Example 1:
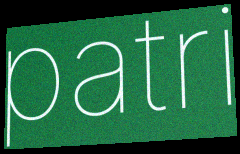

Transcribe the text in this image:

patri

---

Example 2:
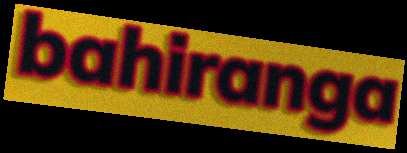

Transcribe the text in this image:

bahiranga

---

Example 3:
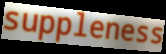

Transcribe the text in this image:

suppleness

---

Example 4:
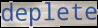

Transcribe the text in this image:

deplete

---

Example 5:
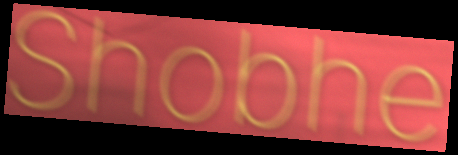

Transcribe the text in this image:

Shobhe